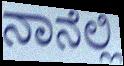
ನಾನೆಲ್ಲಿ